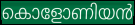
കൊളോണിയൻ